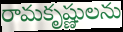
రామకృష్ణులను